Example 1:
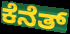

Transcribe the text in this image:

ಕೆನೆತ್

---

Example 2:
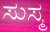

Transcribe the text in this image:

ಸುಸ್ಮ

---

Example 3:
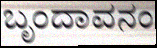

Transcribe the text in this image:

ಬೃಂದಾವನಂ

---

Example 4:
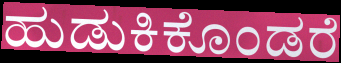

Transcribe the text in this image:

ಹುಡುಕಿಕೊಂಡರೆ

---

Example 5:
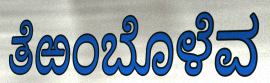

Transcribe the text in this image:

ತೆಱಂಬೊಳೆವ